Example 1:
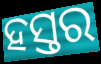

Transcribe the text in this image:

ହସ୍ତର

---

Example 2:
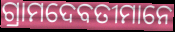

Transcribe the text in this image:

ଗ୍ରାମଦେବତୀମାନେ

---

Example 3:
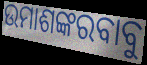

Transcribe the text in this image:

ଉମାଶଙ୍କରବାବୁ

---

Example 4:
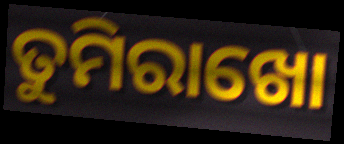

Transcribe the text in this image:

ତୁମିରାଖୋ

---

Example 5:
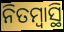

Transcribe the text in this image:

ନିତମ୍ବାସ୍ଥି